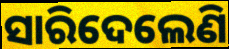
ସାରିଦେଲେଣି